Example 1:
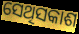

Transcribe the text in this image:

ସେଥିସକାଶ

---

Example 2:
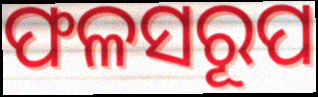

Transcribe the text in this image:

ଫଳସରୂପ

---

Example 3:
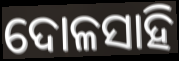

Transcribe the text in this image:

ଦୋଳସାହି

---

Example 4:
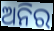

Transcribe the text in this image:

ଅନିର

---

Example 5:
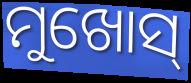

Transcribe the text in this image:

ମୁଖୋସ୍